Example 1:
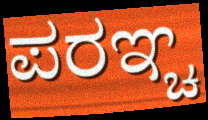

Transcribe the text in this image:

ಪರಞ್ಚ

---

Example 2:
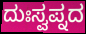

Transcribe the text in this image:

ದುಃಸ್ವಪ್ನದ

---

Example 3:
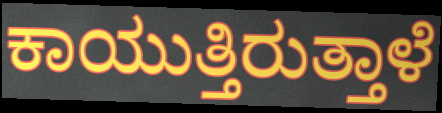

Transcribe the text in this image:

ಕಾಯುತ್ತಿರುತ್ತಾಳೆ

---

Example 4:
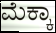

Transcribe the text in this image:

ಮೆಕ್ಕಾ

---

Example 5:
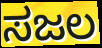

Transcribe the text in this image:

ಸಜಲ